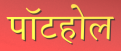
पॉटहोल